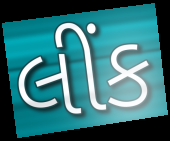
લીંક